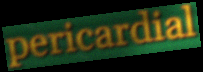
pericardial